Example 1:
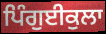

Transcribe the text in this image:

ਪਿੰਗੁਈਕੁਲਾ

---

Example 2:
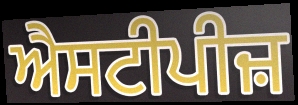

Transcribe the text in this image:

ਐਸਟੀਪੀਜ਼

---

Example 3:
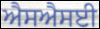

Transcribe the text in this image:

ਐਸਐਸਈ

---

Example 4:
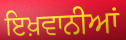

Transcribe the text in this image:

ਇਖ਼ਵਾਨੀਆਂ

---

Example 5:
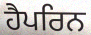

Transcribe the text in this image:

ਹੈਪਰਿਨ